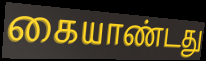
கையாண்டது